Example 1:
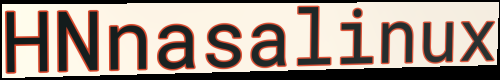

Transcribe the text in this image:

HNnasalinux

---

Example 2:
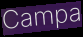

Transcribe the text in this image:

Campa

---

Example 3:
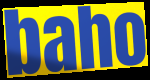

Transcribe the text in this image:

baho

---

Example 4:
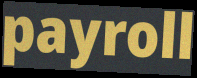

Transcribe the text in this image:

payroll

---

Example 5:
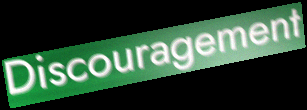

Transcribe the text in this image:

Discouragement